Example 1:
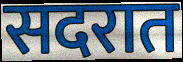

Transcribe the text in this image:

सदरात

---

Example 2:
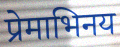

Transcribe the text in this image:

प्रेमाभिनय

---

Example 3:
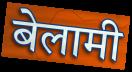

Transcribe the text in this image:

बेलामी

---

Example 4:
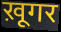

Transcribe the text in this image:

ख़ूगर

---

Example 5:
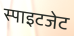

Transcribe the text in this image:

स्पाइटजेट